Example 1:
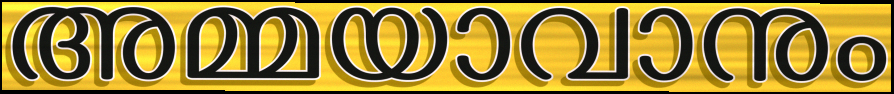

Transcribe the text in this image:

അമ്മയാവാനും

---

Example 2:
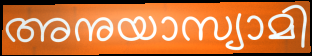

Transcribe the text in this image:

അനുയാസ്യാമി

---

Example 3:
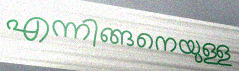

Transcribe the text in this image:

എന്നിങ്ങനെയുള്ള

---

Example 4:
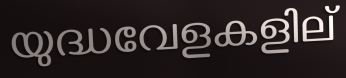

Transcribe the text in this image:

യുദ്ധവേളകളില്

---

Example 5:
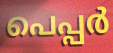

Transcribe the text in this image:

പെപ്പർ